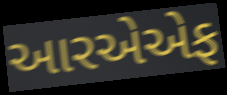
આરએએફ